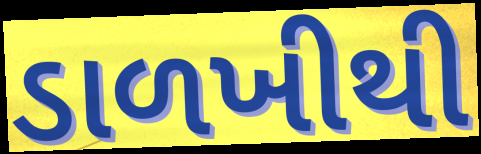
ડાળખીથી